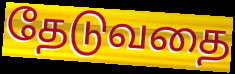
தேடுவதை